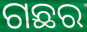
ଗଛର